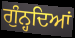
ਗੁੰਨ੍ਹਦਿਆਂ